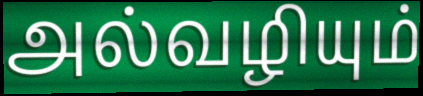
அல்வழியும்